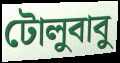
টোলুবাবু